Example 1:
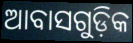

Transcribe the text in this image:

ଆବାସଗୁଡ଼ିକ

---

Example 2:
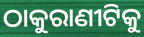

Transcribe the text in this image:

ଠାକୁରାଣୀଟିକୁ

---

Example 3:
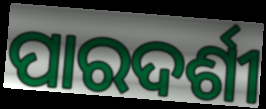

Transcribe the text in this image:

ପାରଦର୍ଶୀ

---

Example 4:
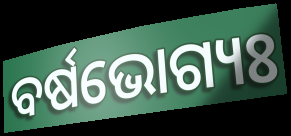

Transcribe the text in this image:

ବର୍ଷଭୋଗ୍ୟଃ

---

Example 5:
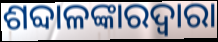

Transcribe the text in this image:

ଶବ୍ଦାଳଙ୍କାରଦ୍ୱାରା